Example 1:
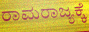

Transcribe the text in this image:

ರಾಮರಾಜ್ಯಕ್ಕೆ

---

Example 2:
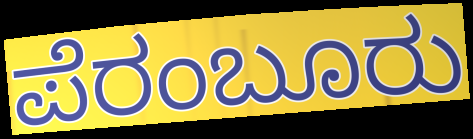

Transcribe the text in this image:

ಪೆರಂಬೂರು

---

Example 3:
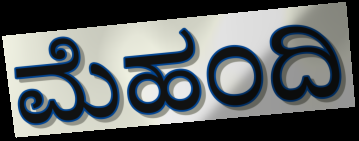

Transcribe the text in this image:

ಮೆಹಂದಿ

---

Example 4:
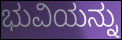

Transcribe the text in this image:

ಭುವಿಯನ್ನು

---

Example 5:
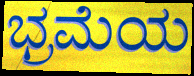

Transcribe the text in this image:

ಭ್ರಮೆಯ